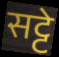
सट्टे